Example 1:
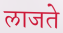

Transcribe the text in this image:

लाजते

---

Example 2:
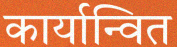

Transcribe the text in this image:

कार्यान्वित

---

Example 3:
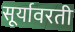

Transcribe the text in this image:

सूर्यावरती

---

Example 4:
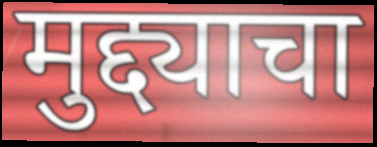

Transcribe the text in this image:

मुद्द्याचा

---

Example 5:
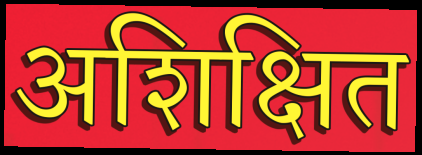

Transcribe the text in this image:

अशिक्षित